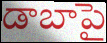
డాబాపై